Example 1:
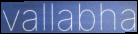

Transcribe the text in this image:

vallabha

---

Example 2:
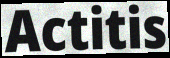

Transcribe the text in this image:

Actitis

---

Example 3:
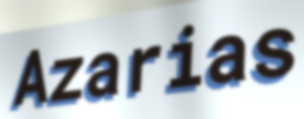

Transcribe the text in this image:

Azarias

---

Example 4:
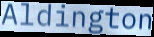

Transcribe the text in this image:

Aldington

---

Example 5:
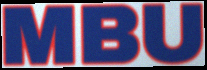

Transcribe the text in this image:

MBU